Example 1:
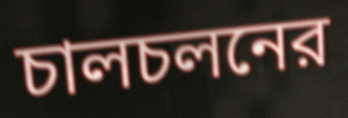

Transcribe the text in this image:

চালচলনের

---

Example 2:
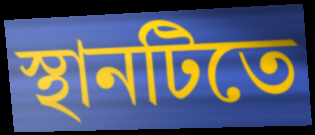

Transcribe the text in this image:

স্থানটিতে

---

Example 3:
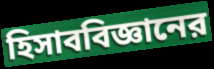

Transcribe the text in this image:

হিসাববিজ্ঞানের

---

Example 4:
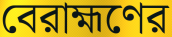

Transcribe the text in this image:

বেরাহ্মণের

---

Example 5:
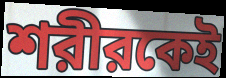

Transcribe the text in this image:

শরীরকেই